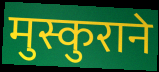
मुस्‍कुराने